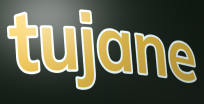
tujane